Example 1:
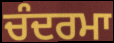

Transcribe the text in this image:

ਚੰਦਰਮਾ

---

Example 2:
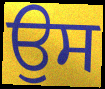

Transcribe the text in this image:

ਉਸ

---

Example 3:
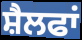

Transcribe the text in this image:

ਸ਼ੈਲਫਾਂ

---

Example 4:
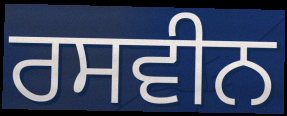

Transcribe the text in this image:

ਰਸਵੀਨ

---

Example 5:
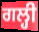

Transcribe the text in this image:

ਗਲ੍ਹੀ